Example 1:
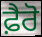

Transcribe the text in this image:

ਫ਼ੈਰੋ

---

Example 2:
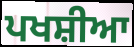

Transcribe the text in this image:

ਪਖਸ਼ੀਆ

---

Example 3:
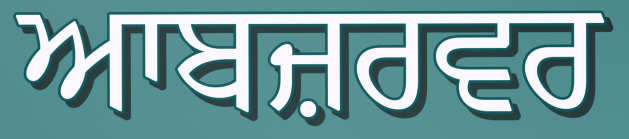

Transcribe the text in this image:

ਆਬਜ਼ਰਵਰ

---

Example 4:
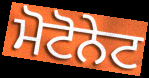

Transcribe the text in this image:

ਮੋਟੋਨੇਟ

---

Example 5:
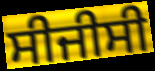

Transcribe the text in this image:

ਸੀਜੀਸੀ